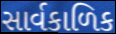
સાર્વકાળિક